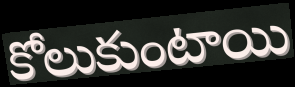
కోలుకుంటాయి